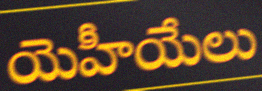
యెహీయేలు